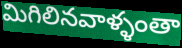
మిగిలినవాళ్ళంతా